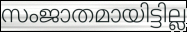
സംജാതമായിട്ടില്ല